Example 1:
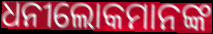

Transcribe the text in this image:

ଧନୀଲୋକମାନଙ୍କ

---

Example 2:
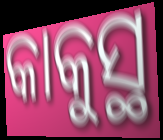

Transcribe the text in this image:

କାକୁସ୍ଥ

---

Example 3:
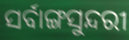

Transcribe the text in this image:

ସର୍ବାଙ୍ଗସୁନ୍ଦରୀ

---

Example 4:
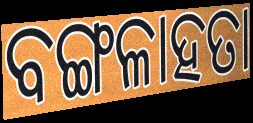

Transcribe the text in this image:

ବଙ୍ଗଳାହତା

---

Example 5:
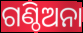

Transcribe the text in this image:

ଗଣ୍ଠିଅନା